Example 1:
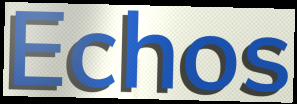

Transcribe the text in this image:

Echos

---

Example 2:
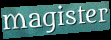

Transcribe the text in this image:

magister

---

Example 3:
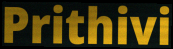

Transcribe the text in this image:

Prithivi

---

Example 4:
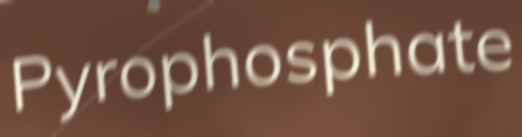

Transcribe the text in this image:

Pyrophosphate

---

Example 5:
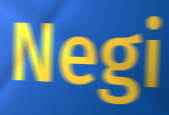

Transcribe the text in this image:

Negi